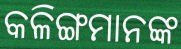
କଳିଙ୍ଗମାନଙ୍କ